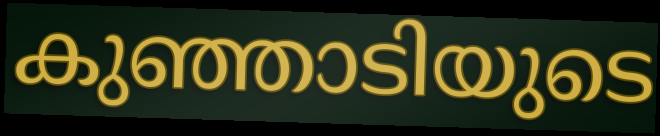
കുഞ്ഞാടിയുടെ